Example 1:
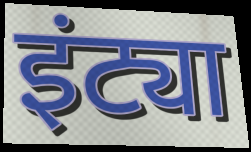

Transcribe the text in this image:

इंट्या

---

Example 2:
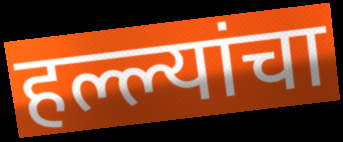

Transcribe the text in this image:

हल्ल्यांचा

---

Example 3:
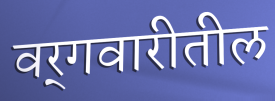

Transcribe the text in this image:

वर्गवारीतील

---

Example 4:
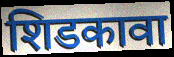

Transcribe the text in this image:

शिडकावा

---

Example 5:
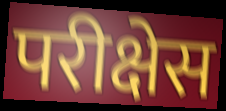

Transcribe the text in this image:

परीक्षेस